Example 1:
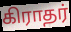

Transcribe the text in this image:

கிராதர்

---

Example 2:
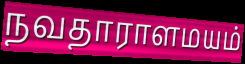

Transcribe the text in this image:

நவதாராளமயம்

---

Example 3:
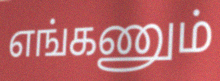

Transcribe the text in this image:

எங்கணும்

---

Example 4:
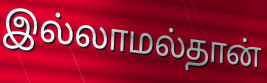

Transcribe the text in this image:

இல்லாமல்தான்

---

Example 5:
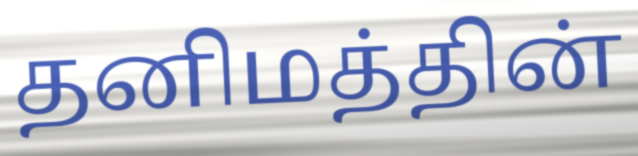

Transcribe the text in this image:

தனிமத்தின்